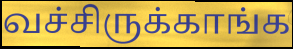
வச்சிருக்காங்க